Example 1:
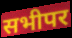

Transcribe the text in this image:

सभीपर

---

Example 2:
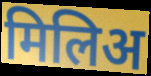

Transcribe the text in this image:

मिलिअ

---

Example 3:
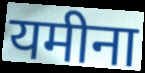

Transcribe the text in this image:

यमीना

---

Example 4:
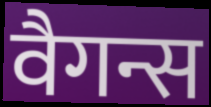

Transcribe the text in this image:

वैगन्स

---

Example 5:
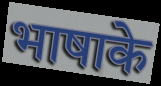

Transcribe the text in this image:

भाषाके